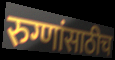
रुग्णांसाठीच